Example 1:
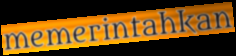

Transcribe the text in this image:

memerintahkan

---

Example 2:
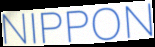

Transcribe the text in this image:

NIPPON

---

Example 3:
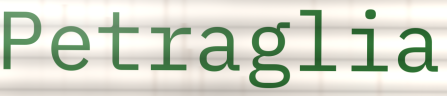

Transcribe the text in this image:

Petraglia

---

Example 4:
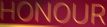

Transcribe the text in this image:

HONOUR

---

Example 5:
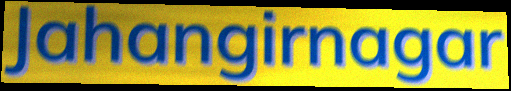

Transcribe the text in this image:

Jahangirnagar